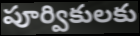
పూర్వికులకు